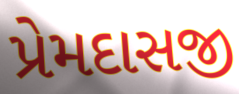
પ્રેમદાસજી